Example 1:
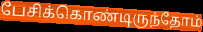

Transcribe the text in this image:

பேசிக்கொண்டிருந்தோம்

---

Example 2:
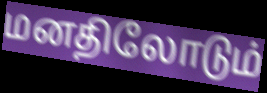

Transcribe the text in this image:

மனதிலோடும்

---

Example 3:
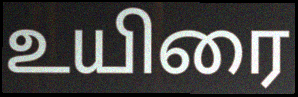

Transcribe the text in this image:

உயிரை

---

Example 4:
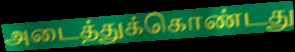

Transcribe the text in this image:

அடைத்துக்கொண்டது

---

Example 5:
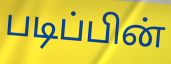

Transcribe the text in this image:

படிப்பின்